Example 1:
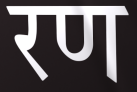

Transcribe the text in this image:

रण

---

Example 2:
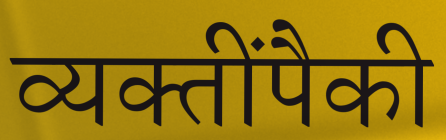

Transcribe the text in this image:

व्यक्‍तींपैकी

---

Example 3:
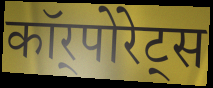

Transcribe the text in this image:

कॉर्पोरेट्‌स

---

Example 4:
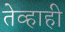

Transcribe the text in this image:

तेव्हाही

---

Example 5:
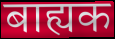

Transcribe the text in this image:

बाह्यक